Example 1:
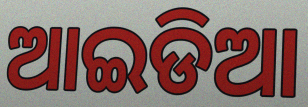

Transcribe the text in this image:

ଆଇଡିଆ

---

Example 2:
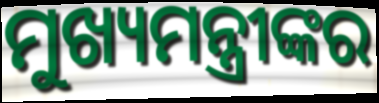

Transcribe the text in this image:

ମୁଖ୍ୟମନ୍ତ୍ରୀଙ୍କର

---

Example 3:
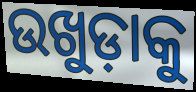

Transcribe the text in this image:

ଉଖୁଡ଼ାକୁ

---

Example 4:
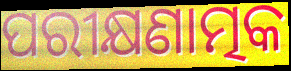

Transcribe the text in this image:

ପରୀକ୍ଷଣାତ୍ମକ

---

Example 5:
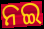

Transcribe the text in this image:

ନଇ